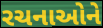
રચનાઓને